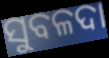
ସୁବଳଦା